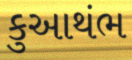
કુઆથંભ